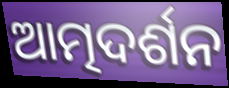
ଆତ୍ମଦର୍ଶନ